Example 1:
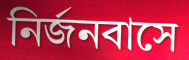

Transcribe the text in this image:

নির্জনবাসে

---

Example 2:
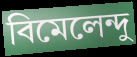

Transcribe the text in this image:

বিমেলেন্দু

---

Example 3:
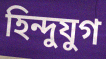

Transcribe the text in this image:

হিন্দুযুগ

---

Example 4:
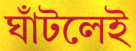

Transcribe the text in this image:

ঘাঁটলেই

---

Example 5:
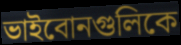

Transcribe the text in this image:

ভাইবোনগুলিকে